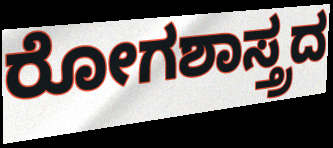
ರೋಗಶಾಸ್ತ್ರದ